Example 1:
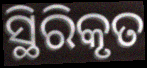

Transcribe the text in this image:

ସ୍ଥିରିକୃତ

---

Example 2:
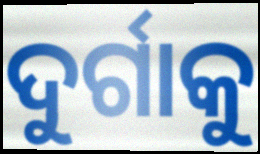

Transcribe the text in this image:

ଦୁର୍ଗାକୁ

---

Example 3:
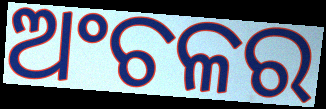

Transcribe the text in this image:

ଅଂଚଳର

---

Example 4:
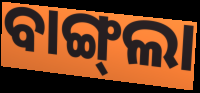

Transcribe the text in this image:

ବାଙ୍ଗ୍‍ଲା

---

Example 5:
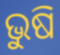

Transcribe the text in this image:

ଭୁଷି